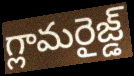
గ్లామరైజ్డ్